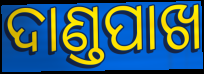
ଦାଣ୍ଡପାଖ